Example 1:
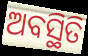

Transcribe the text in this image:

ଅବସ୍ଥିତି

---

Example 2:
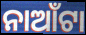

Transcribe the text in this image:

ନାଆଁଟା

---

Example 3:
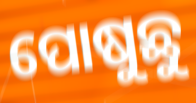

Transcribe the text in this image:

ପୋଷୁଛୁ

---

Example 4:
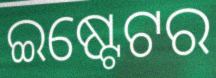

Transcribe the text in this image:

ଇଷ୍ଟେଟର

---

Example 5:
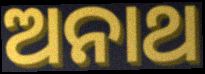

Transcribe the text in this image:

ଅନାଥ